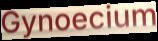
Gynoecium